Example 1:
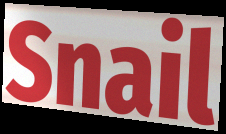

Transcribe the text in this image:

Snail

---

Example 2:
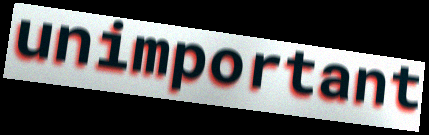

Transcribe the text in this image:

unimportant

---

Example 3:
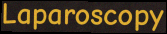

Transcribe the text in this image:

Laparoscopy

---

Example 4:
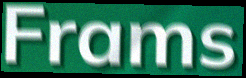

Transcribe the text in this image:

Frams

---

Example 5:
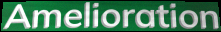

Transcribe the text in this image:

Amelioration